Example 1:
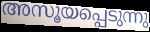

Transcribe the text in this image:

അസൂയപ്പെടുന്നു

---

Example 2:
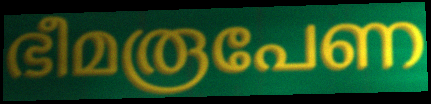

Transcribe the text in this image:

ഭീമരൂപേണ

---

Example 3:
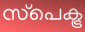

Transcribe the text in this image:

സ്‌പെക്ട്ര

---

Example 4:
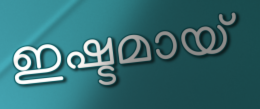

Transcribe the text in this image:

ഇഷ്ടമായ്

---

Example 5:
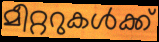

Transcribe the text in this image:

മീറ്ററുകൾക്ക്